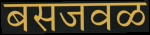
बसजवळ